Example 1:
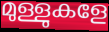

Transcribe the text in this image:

മുള്ളുകളേ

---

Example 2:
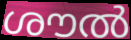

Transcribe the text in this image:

ശൗൽ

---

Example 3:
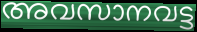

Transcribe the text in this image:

അവസാനവട്ട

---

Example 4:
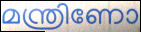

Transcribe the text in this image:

മന്ത്രിണോ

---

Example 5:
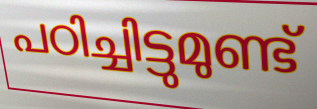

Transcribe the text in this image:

പഠിച്ചിട്ടുമുണ്ട്